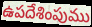
ఉపదేశింపుము